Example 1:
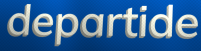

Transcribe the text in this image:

departide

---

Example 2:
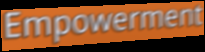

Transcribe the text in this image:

Empowerment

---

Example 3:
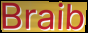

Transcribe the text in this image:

Braib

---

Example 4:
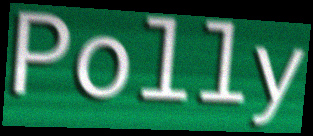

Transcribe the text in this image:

Polly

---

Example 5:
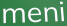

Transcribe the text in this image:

meni